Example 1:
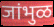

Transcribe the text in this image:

जांभुळ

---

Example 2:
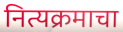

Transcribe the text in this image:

नित्यक्रमाचा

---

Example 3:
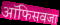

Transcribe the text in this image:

ऑफिसवजा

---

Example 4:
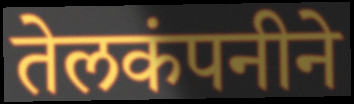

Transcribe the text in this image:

तेलकंपनीने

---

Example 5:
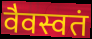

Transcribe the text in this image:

वैवस्वतं